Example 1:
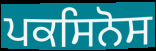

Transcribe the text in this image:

ਪਕਸਿਨੋਸ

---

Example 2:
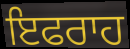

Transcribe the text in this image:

ਇਫਰਾਹ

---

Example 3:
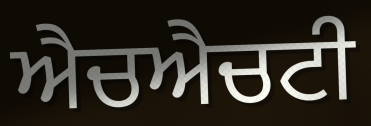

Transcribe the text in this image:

ਐਚਐਚਟੀ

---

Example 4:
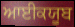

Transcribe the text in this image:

ਆਈਕਯੂਬ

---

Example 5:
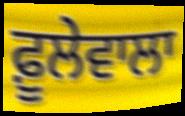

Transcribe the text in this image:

ਫ਼ੂਲੇਵਾਲਾ